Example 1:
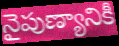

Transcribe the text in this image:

నైపుణ్యానికీ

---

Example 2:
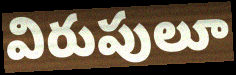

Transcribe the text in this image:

విరుపులూ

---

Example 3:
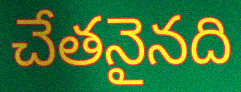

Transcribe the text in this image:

చేతనైనది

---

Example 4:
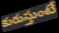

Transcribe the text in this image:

కురుస్తుంటే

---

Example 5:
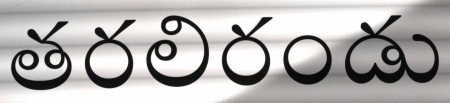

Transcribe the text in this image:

తరలిరండు